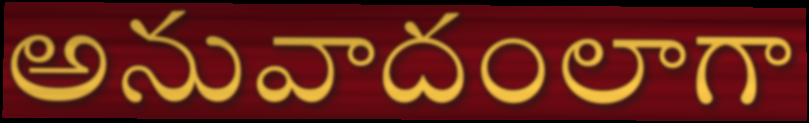
అనువాదంలాగా